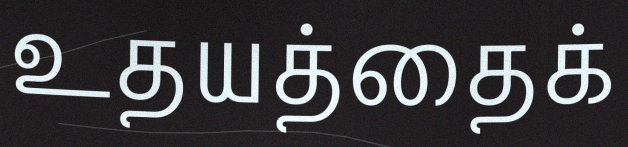
உதயத்தைக்